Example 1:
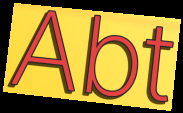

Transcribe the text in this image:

Abt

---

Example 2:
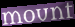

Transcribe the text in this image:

mount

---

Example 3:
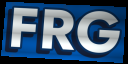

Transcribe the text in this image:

FRG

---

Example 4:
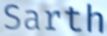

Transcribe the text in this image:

Sarth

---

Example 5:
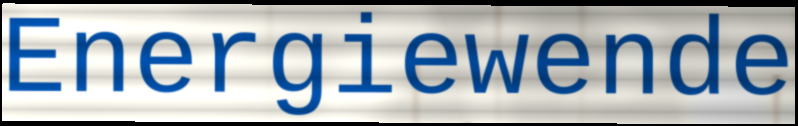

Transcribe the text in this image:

Energiewende